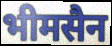
भीमसैन